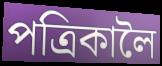
পত্ৰিকালৈ